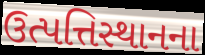
ઉત્પત્તિસ્થાનના